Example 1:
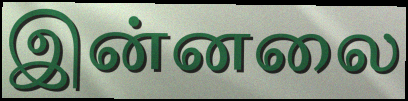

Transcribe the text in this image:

இன்னலை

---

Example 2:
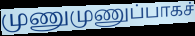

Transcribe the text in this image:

முணுமுணுப்பாகச்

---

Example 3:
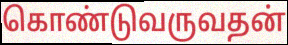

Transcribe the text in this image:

கொண்டுவருவதன்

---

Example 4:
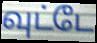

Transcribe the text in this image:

வுட்டே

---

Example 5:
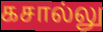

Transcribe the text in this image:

கசால்லு